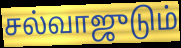
சல்வாஜுடும்